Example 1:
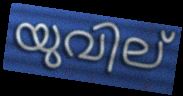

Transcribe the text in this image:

യുവില്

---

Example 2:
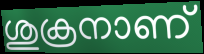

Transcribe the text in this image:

ശുക്രനാണ്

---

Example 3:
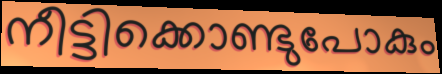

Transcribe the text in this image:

നീട്ടിക്കൊണ്ടുപോകും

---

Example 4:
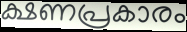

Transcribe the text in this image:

ക്ഷണപ്രകാരം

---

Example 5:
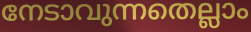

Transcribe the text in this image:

നേടാവുന്നതെല്ലാം